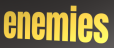
enemies